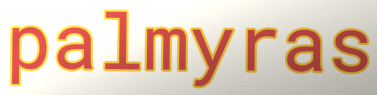
palmyras